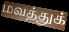
மவத்துக்